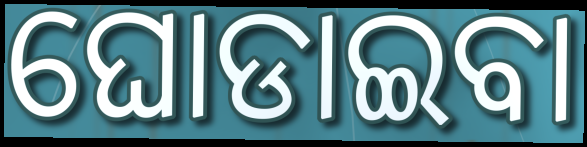
ଘୋଡାଇବା